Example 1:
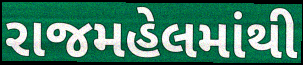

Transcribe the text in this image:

રાજમહેલમાંથી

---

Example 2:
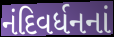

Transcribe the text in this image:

નંદિવર્ધનનાં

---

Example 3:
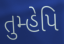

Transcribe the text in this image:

તુમ્હેપિ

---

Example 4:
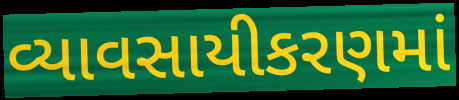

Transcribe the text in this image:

વ્યાવસાયીકરણમાં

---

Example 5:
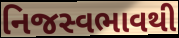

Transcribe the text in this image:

નિજસ્વભાવથી